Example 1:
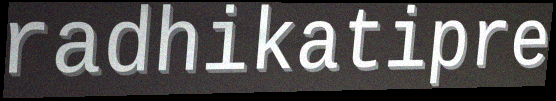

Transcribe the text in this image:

radhikatipre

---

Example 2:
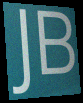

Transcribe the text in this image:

JB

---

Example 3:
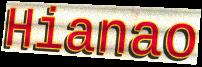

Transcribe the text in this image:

Hianao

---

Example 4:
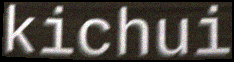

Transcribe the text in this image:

kichui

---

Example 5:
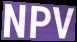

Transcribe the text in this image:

NPV